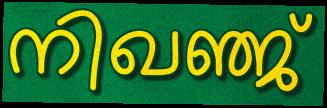
നിഖഞ്ജ്